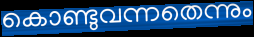
കൊണ്ടുവന്നതെന്നും